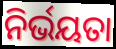
ନିର୍ଭୟତା